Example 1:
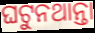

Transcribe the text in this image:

ଘଟୁନଥାନ୍ତା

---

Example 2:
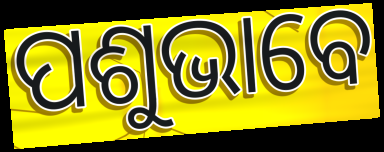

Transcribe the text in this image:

ପଶୁଭାବେ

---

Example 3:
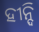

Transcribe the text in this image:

ହୀନ୍ଦି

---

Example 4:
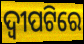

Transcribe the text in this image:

ଦ୍ୱୀପଟିରେ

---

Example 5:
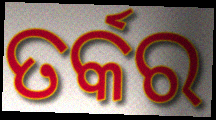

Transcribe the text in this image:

ତର୍କର